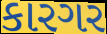
કારગર